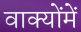
वाक्योंमें